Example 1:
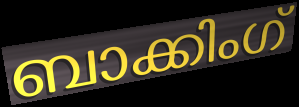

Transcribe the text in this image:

ബാക്കിംഗ്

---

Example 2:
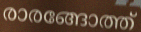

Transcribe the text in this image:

രാരങ്ങോത്ത്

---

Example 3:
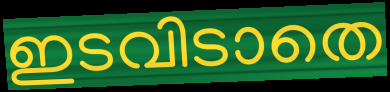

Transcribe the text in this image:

ഇടവിടാതെ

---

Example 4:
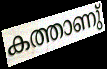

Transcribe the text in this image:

കത്താണു്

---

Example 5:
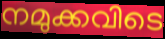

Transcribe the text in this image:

നമുക്കവിടെ